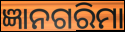
ଜ୍ଞାନଗରିମା